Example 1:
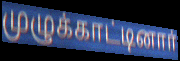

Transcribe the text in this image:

முழுக்காட்டினார்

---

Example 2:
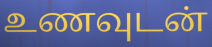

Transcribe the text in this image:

உணவுடன்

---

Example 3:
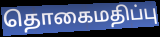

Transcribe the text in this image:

தொகைமதிப்பு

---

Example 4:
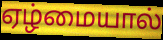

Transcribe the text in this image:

ஏழ்மையால்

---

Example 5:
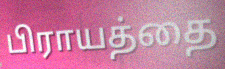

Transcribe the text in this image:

பிராயத்தை